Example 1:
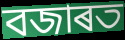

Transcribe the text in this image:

বজাৰত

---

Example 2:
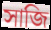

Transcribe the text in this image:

সাজি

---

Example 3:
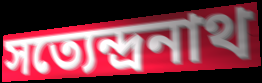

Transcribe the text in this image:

সত্যেন্দ্ৰনাথ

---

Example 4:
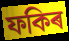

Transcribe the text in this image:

ফকিৰ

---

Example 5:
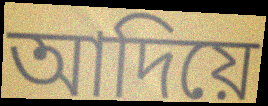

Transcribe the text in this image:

আদিয়ে